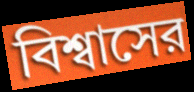
বিশ্বাসের